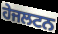
ਹੇਜਲਟਨ